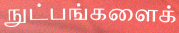
நுட்பங்களைக்